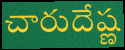
చారుదేష్ణ